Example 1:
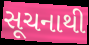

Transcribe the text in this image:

સૂચનાથી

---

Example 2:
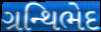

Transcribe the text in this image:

ગ્રન્થિભેદ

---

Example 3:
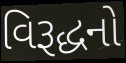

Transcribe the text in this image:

વિરૂદ્ધનો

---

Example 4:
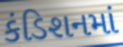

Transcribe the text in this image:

કંડિશનમાં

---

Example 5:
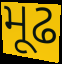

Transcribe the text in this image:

મૂઢ